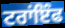
ਟਰਾਂਇੰਫ